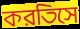
করতিসে